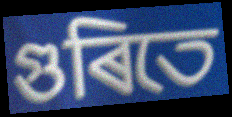
গুৰিতে